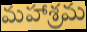
మహాశ్రమ